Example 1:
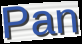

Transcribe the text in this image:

Pan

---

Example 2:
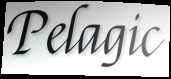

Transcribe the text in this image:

Pelagic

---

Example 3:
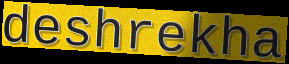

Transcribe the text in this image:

deshrekha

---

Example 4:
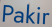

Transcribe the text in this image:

Pakir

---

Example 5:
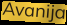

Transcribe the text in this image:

Avanija